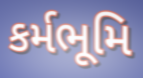
કર્મભૂમિ